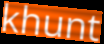
khunt